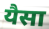
यैसा